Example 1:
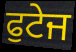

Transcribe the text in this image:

ਫੁਟੇਜ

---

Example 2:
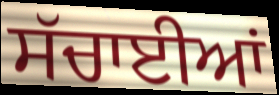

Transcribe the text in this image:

ਸੱਚਾਈਆਂ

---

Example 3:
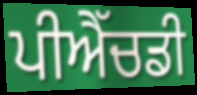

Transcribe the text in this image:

ਪੀਐੱਚਡੀ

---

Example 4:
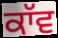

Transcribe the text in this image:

ਕਾੱਵ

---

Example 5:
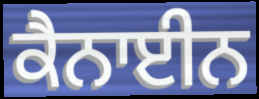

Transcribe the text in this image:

ਕੈਨਾਈਨ